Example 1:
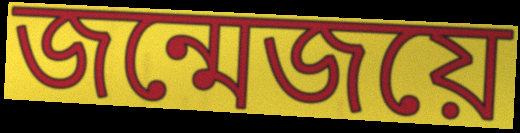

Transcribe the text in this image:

জন্মেজয়ে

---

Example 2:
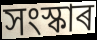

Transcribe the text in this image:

সংস্কাৰ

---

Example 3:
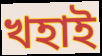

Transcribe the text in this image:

খহাই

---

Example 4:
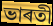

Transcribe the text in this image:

ভাৰতী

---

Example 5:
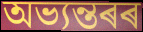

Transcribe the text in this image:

অভ্যন্তৰৰ